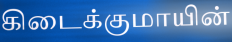
கிடைக்குமாயின்